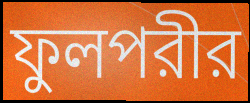
ফুলপরীর